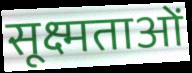
सूक्ष्मताओं